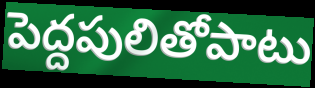
పెద్దపులితోపాటు